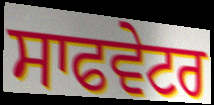
ਸਾਫਵੇਟਰ